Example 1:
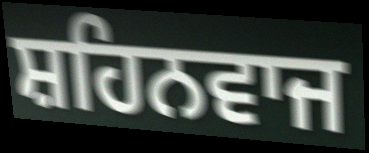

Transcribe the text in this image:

ਸ਼ਹਿਨਵਾਜ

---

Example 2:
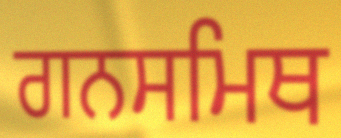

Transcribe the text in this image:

ਗਨਸਮਿਥ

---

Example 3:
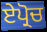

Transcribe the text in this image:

ਏਪ੍ਰੋਚ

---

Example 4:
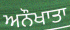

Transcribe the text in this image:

ਅਨੌਖਾਤਾ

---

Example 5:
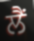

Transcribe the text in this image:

ਲੈਂ